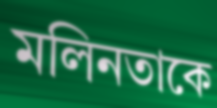
মলিনতাকে